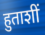
हुताशीं